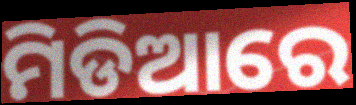
ମିଡିଆରେ